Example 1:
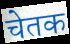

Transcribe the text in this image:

चेतक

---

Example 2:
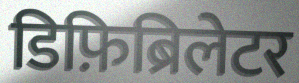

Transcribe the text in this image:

डिफ़िब्रिलेटर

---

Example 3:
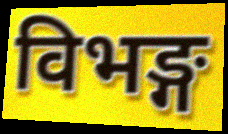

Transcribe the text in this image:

विभङ्ग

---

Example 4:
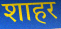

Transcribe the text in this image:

शाहर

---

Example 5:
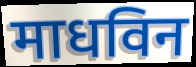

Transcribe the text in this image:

माधविन